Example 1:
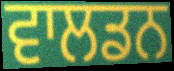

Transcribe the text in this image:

ਵਾਲਡਨ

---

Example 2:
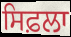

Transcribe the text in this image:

ਸਿਫ਼ਲਾ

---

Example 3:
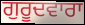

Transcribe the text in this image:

ਗੁਰੂਦਵਾਰਾ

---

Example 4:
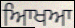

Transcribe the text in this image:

ਆਿਖਆ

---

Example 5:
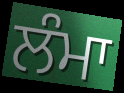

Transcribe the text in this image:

ਲੰਮਾ